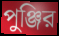
পুঞ্জির